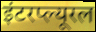
इंटरप्ल्यूरल